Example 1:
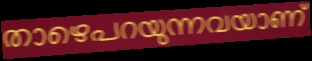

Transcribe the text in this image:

താഴെപറയുന്നവയാണ്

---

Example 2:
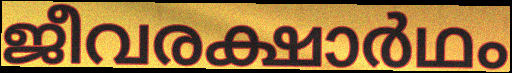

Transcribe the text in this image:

ജീവരക്ഷാർഥം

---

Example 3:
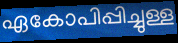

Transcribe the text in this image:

ഏകോപിപ്പിച്ചുള്ള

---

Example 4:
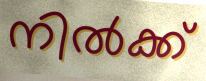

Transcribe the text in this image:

നിൽക്ക്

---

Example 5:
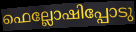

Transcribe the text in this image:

ഫെല്ലോഷിപ്പോടു